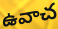
ఉవాచ